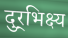
दुर्भिक्ष्य